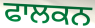
ਫਾਲਕਨ